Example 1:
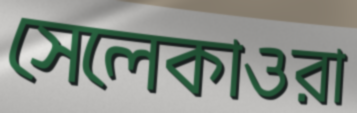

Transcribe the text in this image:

সেলেকাওরা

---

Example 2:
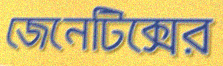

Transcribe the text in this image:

জেনেটিক্সের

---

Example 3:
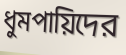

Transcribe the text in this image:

ধুমপায়িদের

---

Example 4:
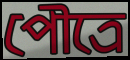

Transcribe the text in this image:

পৌত্রে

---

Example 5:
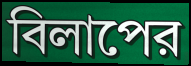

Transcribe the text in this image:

বিলাপের